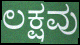
ಲಕ್ಷವು